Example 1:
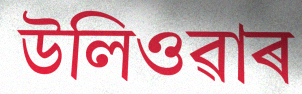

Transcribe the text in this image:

উলিওৱাৰ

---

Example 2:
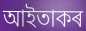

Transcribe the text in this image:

আইতাকৰ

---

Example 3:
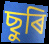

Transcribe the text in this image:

ছুৰি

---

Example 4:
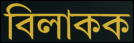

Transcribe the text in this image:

বিলাকক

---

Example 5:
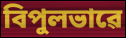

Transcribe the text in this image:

বিপুলভাৱে